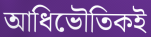
আধিভৌতিকই